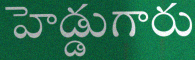
హెడ్డుగారు